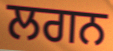
ਲਗਨ